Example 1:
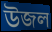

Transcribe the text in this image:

উজল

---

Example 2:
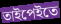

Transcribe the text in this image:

তাইপেইতে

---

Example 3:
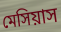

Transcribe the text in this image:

মেসিয়াস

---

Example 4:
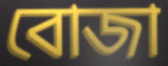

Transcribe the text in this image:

বোজা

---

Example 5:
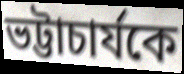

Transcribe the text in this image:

ভট্টাচার্যকে